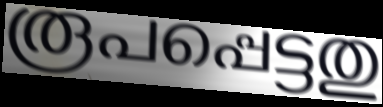
രൂപപ്പെട്ടതു